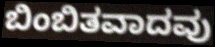
ಬಿಂಬಿತವಾದವು